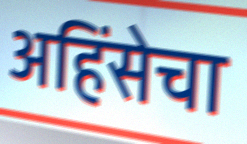
अहिंसेचा